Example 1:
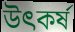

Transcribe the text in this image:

উৎকৰ্ষ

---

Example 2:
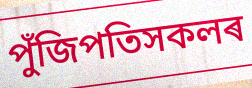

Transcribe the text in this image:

পুঁজিপতিসকলৰ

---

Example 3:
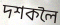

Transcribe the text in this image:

দশকলৈ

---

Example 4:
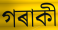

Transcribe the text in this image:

গৰাকী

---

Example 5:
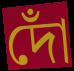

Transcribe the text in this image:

দোঁ